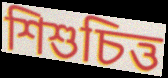
শিশুচিত্ত